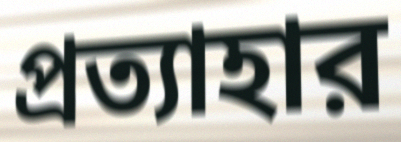
প্রত্যাহার